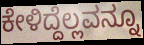
ಕೇಳಿದ್ದೆಲ್ಲವನ್ನೂ